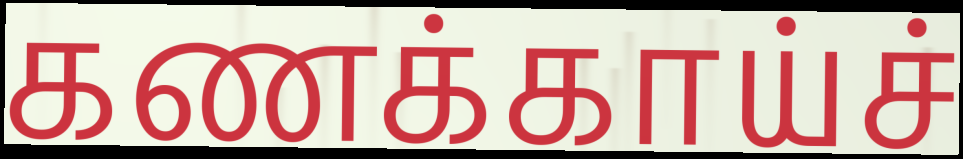
கணக்காய்ச்